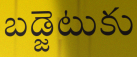
బడ్జెటుకు